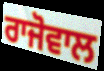
ਰਾਜੋਵਾਲ